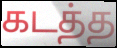
கடத்த